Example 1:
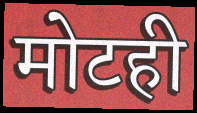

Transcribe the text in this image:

मोटही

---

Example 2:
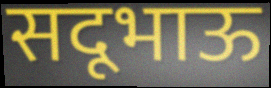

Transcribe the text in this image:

सदूभाऊ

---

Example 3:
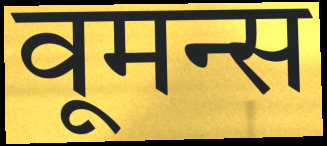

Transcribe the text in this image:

वूमन्स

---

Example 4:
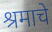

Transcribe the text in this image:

श्रमाचे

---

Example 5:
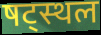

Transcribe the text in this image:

षट्स्थल